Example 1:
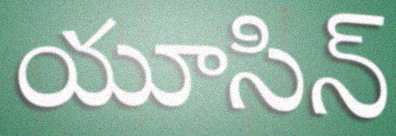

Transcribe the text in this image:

యూసిన్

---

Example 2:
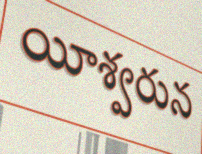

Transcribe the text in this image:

యీశ్వరున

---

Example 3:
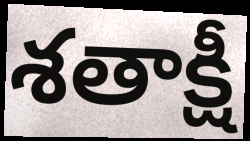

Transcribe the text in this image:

శతాక్షీ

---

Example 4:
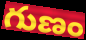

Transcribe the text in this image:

గుణం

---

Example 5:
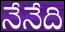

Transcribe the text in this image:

నేనేది